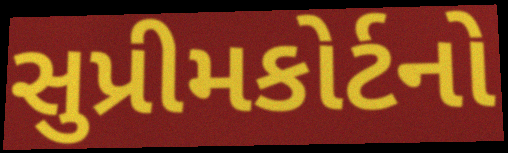
સુપ્રીમકોર્ટનો